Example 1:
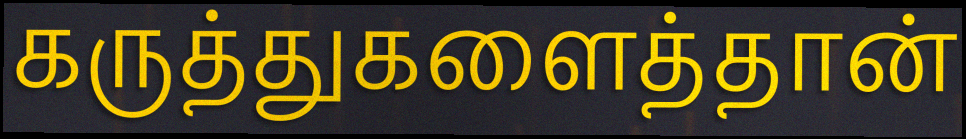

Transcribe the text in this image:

கருத்துகளைத்தான்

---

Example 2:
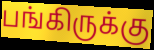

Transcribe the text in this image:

பங்கிருக்கு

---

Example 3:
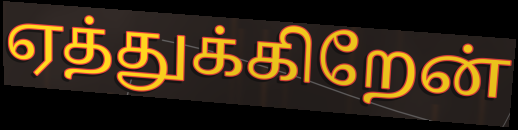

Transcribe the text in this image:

ஏத்துக்கிறேன்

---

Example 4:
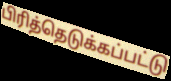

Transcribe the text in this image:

பிரித்தெடுக்கப்பட்டு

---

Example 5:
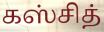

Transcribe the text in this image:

கஸ்சித்